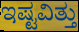
ಇಷ್ಟವಿತ್ತು